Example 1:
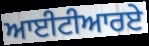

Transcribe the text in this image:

ਆਈਟੀਆਰਏ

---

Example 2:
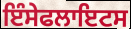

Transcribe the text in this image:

ਇੰਸੇਫਲਾਇਟਸ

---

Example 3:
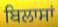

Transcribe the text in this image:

ਬਿਲਾਸਾਂ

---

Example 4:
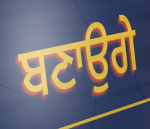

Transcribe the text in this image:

ਬਣਾਉਗੇ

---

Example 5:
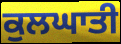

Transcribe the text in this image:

ਕੁਲਘਾਤੀ